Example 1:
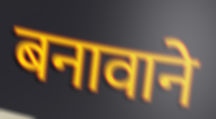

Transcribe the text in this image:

बनावाने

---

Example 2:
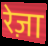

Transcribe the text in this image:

रेज़ा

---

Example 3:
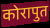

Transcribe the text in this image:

कोरापुत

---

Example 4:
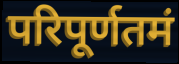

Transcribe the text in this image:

परिपूर्णतमं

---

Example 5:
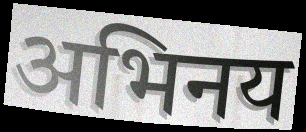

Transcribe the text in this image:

अभिनय